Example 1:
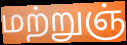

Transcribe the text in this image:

மற்றுஞ்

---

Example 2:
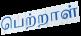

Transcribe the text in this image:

பெற்றாள்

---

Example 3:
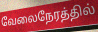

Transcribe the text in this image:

வேலைநேரத்தில்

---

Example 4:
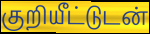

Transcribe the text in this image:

குறியீட்டுடன்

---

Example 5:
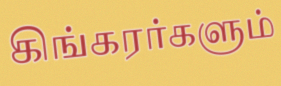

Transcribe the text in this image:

கிங்கரர்களும்